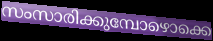
സംസാരിക്കുമ്പോഴൊക്കെ